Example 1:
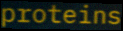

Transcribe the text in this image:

proteins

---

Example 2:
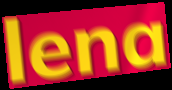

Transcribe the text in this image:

lena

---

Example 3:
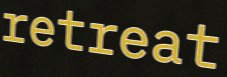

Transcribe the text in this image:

retreat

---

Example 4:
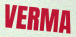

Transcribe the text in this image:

VERMA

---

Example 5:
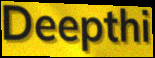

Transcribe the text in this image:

Deepthi